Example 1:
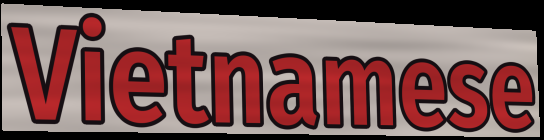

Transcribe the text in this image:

Vietnamese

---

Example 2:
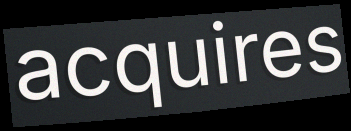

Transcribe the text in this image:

acquires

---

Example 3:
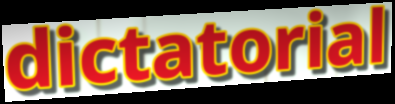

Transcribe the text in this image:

dictatorial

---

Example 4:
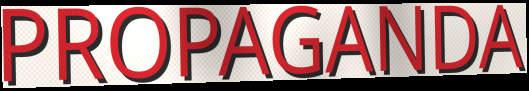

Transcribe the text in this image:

PROPAGANDA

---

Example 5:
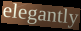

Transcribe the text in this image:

elegantly